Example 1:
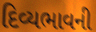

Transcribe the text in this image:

દિવ્યભાવની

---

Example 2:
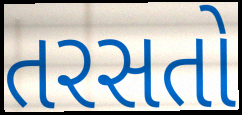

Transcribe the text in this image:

તરસતો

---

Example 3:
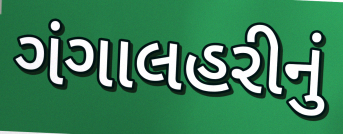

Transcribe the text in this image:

ગંગાલહરીનું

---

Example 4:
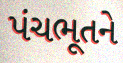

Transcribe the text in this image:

પંચભૂતને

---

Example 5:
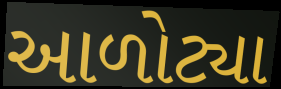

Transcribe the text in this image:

આળોટ્યા